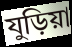
যুড়িয়া